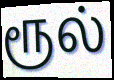
ரூல்